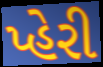
પ્હેરી